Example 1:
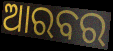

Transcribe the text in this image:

ଆରବର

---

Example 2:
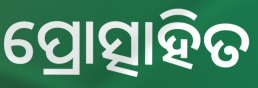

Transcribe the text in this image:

ପ୍ରୋତ୍ସାହିତ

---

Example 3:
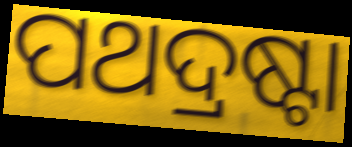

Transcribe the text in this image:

ପଥଦ୍ରଷ୍ଟା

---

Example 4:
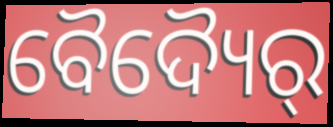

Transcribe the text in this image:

ବୈଦ୍ୟୈର୍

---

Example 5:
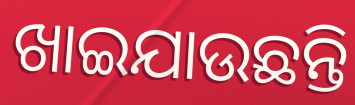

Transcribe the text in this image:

ଖାଇଯାଉଛନ୍ତି